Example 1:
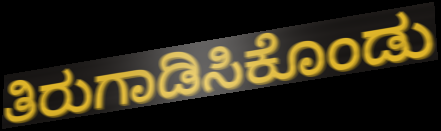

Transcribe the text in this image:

ತಿರುಗಾಡಿಸಿಕೊಂಡು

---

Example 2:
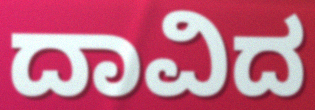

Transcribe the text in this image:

ದಾವಿದ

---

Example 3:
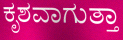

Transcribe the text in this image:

ಕೃಶವಾಗುತ್ತಾ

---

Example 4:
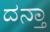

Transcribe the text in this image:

ದನ್ತಾ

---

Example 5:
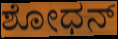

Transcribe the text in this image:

ಶೋಧನ್